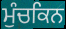
ਮੁੰਚਕਿਨ